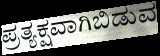
ಪ್ರತ್ಯಕ್ಷವಾಗಿಬಿಡುವ